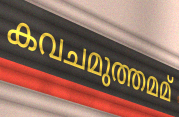
കവചമുത്തമമ്